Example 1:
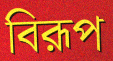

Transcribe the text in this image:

বিরূপ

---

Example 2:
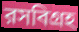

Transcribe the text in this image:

রসবিগ্রহ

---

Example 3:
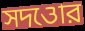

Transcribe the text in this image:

সদওোর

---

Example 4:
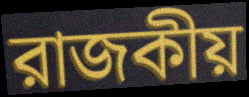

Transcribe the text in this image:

রাজকীয়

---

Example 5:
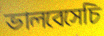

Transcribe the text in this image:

ভালবেসেচি